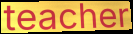
teacher